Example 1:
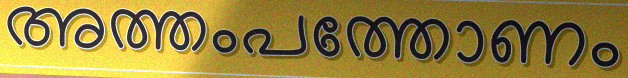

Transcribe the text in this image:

അത്തംപത്തോണം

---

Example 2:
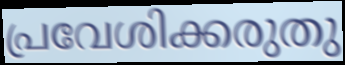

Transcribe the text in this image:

പ്രവേശിക്കരുതു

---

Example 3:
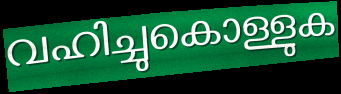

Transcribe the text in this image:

വഹിച്ചുകൊള്ളുക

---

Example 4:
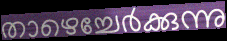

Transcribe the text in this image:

താഴെച്ചേർക്കുന്നു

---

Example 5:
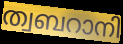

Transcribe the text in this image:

ത്വബറാനി